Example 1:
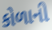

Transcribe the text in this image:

કોળાની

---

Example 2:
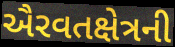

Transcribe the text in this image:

ઐરવતક્ષેત્રની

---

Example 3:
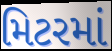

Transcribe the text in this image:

મિટરમાં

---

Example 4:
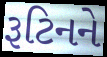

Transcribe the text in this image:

રૂટિનને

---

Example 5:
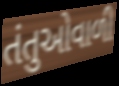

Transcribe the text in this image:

તંતુઓવાળી